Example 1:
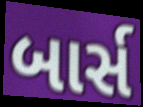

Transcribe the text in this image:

બાર્સ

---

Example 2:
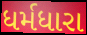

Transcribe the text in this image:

ધર્મધારા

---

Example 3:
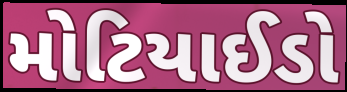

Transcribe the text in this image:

મોટિયાઈડો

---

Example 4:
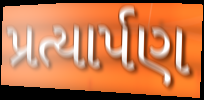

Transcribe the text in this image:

પ્રત્યાર્પણ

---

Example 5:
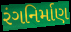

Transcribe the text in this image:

રંગનિર્માણ